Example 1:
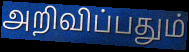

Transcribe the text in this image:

அறிவிப்பதும்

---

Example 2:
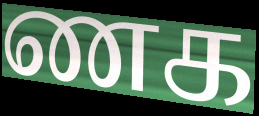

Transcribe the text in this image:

ணக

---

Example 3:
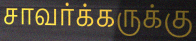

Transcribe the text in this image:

சாவர்க்கருக்கு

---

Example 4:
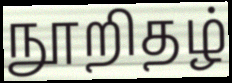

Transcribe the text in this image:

நூறிதழ்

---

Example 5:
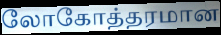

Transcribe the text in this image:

லோகோத்தரமான